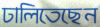
ঢালিতেছেন